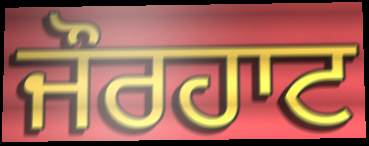
ਜੌਰਹਾਟ